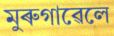
মুৰুগাৱেলে